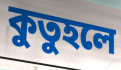
কুতুহলে